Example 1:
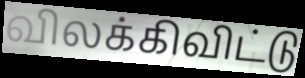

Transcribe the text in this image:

விலக்கிவிட்டு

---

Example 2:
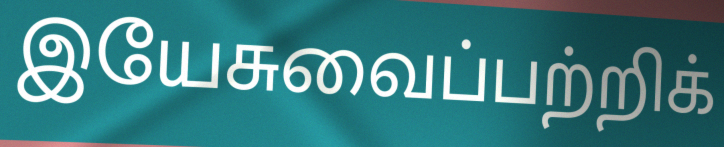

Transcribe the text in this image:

இயேசுவைப்பற்றிக்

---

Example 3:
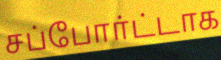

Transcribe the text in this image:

சப்போர்ட்டாக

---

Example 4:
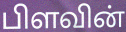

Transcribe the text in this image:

பிளவின்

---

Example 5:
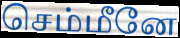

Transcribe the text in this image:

செம்மீனே